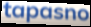
tapasno